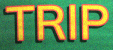
TRIP